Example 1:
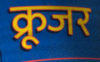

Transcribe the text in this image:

क्रूजर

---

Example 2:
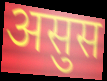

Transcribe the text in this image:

असुस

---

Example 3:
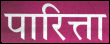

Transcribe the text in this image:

पारित्ता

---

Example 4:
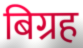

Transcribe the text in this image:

बिग्रह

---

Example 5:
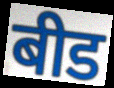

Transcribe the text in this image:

बीड